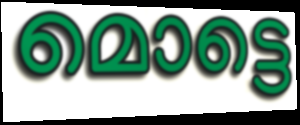
മൊട്ടെ